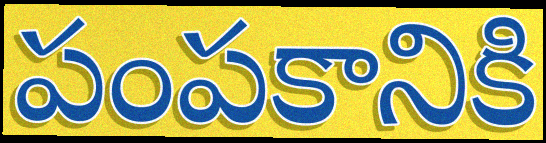
పంపకానికి